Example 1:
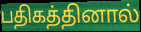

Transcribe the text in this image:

பதிகத்தினால்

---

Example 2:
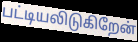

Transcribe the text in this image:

பட்டியலிடுகிறேன்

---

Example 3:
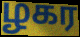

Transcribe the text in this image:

ழகர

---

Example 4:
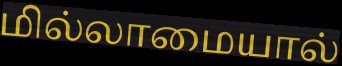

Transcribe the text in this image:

மில்லாமையால்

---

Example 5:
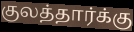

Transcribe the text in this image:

குலத்தார்க்கு